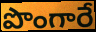
పొంగారే